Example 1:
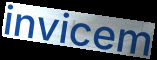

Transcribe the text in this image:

invicem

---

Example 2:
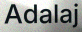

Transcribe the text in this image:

Adalaj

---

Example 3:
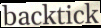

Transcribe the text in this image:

backtick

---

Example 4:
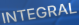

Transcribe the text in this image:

INTEGRAL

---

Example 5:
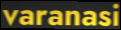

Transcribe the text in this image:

varanasi